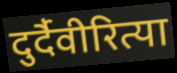
दुर्दैवीरित्या